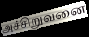
அச்சிறுவனை